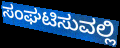
ಸಂಘಟಿಸುವಲ್ಲಿ